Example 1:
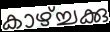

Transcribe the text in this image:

കാഴ്ച്ചക്കു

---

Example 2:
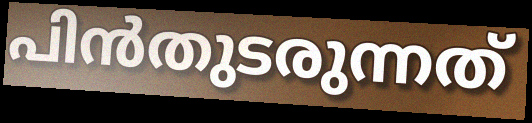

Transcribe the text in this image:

പിൻതുടരുന്നത്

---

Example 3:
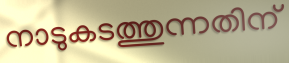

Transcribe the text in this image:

നാടുകടത്തുന്നതിന്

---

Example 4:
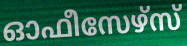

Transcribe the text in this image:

ഓഫീസേഴ്സ്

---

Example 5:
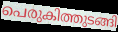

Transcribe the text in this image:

പെരുകിത്തുടങ്ങി